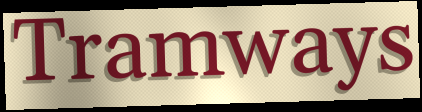
Tramways